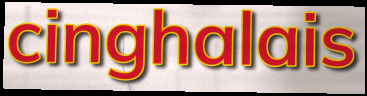
cinghalais